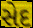
સેદ